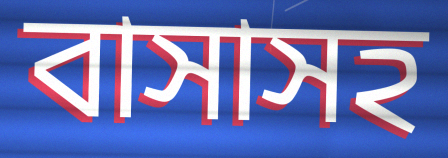
বাসাসহ